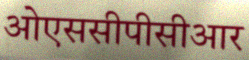
ओएससीपीसीआर